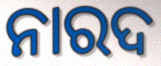
ନାରଦ